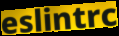
eslintrc